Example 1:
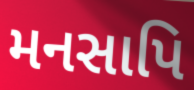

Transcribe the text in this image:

મનસાપિ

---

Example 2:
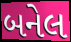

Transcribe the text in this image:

બનેલ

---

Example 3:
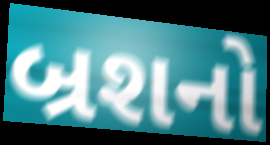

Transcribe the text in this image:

બ્રશનો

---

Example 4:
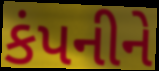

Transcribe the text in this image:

કંપનીને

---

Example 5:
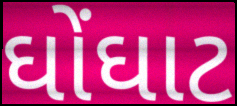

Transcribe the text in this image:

ઘોંઘાટ